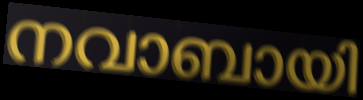
നവാബായി